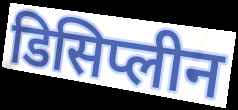
डिसिप्लीन